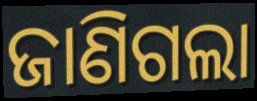
ଜାଣିଗଲା